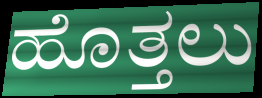
ಹೊತ್ತಲು